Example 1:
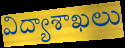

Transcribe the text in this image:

విద్యాశాఖలు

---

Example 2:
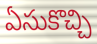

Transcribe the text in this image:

ఏసుకొచ్చి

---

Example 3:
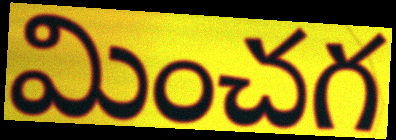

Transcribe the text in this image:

మించగ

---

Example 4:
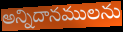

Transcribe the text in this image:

అన్నిదానములను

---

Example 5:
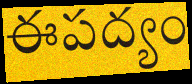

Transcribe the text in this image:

ఈపద్యం